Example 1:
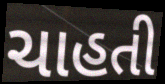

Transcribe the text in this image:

ચાહતી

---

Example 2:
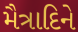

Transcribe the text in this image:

મૈત્રાદિને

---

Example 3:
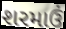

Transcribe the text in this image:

શરમાઉં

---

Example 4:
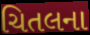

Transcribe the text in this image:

ચિતલના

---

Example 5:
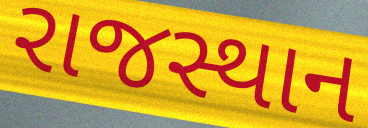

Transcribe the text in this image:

રાજસ્થાન